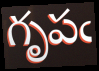
గృపఁ